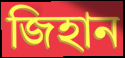
জিহান